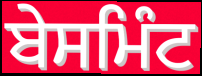
ਬੇਸਮਿੰਟ